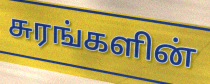
சுரங்களின்